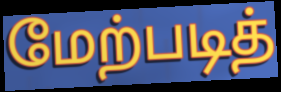
மேற்படித்